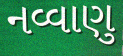
નવ્વાણુ